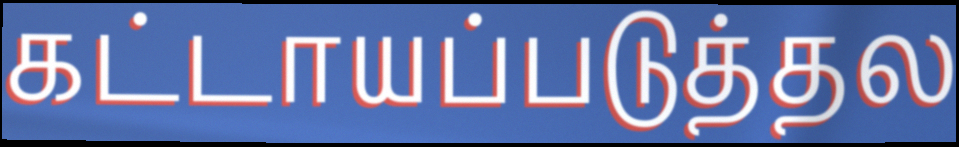
கட்டாயப்படுத்தல